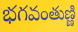
భగవంతుణ్ణి